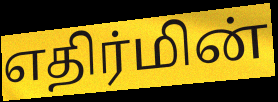
எதிர்மின்